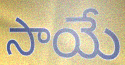
సాయే